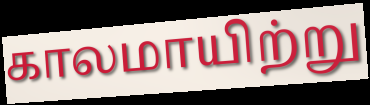
காலமாயிற்று